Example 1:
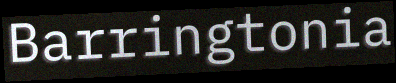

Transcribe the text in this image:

Barringtonia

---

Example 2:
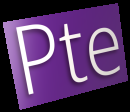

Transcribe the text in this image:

Pte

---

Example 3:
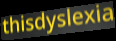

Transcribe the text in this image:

thisdyslexia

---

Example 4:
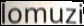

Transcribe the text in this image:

lomuzi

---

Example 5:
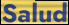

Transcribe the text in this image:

Salud